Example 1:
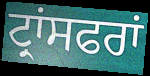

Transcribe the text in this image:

ਟ੍ਰਾਂਸਫਰਾਂ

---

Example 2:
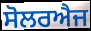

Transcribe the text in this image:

ਸੋਲਰਐਜ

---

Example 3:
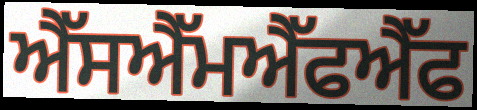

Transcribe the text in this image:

ਐੱਸਐੱਮਐੱਫਐੱਫ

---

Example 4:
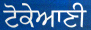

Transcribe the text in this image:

ਟੋਕੇਆਣੀ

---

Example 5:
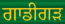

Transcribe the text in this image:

ਗਾਡੀਗੜ